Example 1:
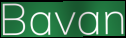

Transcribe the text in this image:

Bavan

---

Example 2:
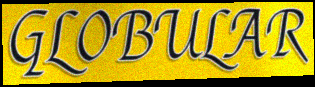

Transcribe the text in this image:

GLOBULAR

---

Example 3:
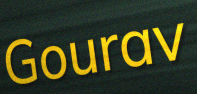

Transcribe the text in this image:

Gourav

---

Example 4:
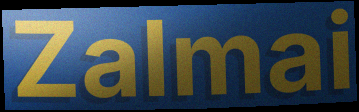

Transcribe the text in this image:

Zalmai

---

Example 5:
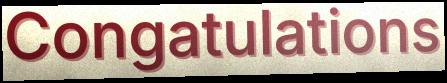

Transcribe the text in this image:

Congatulations